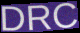
DRC